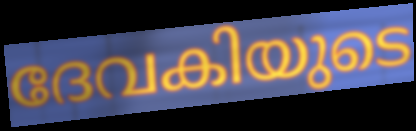
ദേവകിയുടെ